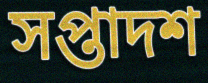
সপ্তাদশ